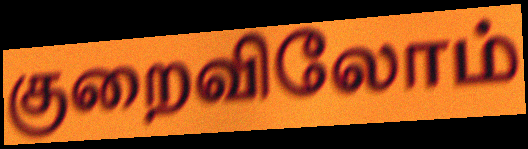
குறைவிலோம்